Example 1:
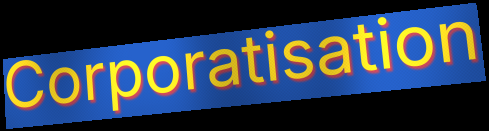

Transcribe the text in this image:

Corporatisation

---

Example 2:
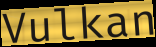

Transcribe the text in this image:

Vulkan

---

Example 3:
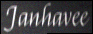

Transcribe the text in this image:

Janhavee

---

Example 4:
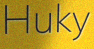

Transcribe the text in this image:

Huky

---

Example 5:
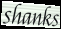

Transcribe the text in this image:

shanks